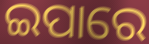
ଇପାରେ